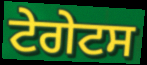
ਟੇਗੇਟਸ